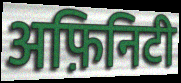
अफ़िनिटी